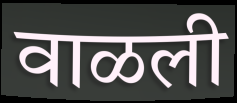
वाळली